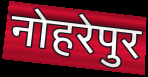
नोहरेपुर